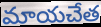
మాయచేత